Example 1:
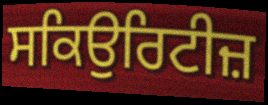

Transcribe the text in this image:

ਸਕਿਉਰਿਟੀਜ਼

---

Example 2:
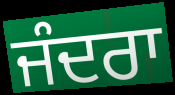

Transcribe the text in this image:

ਜੰਦਰਾ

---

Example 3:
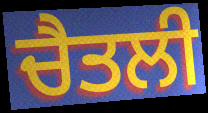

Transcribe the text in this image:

ਚੈਤਲੀ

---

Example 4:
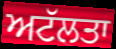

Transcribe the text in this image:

ਅਟੱਲਤਾ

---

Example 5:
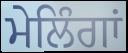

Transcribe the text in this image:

ਮੇਲਿੰਗਾਂ